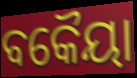
ବକୈୟା